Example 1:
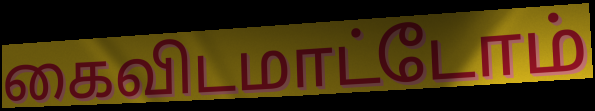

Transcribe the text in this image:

கைவிடமாட்டோம்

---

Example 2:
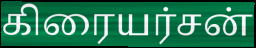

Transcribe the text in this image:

கிரையர்சன்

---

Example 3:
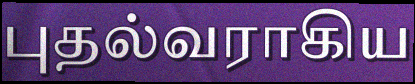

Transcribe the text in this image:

புதல்வராகிய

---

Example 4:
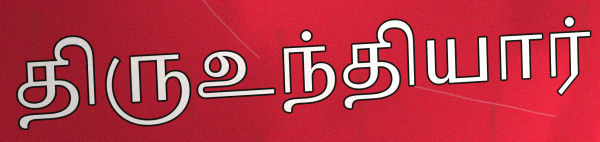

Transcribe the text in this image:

திருஉந்தியார்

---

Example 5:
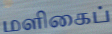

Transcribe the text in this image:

மளிகைப்